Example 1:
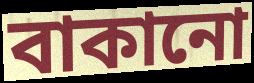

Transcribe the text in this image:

বাকানো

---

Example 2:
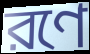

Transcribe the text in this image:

রণে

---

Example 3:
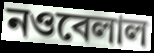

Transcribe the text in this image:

নওবেলাল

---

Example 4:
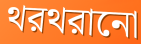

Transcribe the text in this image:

থরথরানো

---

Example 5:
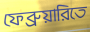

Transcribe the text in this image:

ফেব্রুয়ারিতে